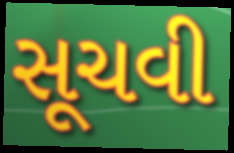
સૂચવી